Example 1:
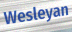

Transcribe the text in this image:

Wesleyan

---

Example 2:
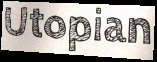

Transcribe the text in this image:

Utopian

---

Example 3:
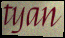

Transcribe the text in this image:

tyan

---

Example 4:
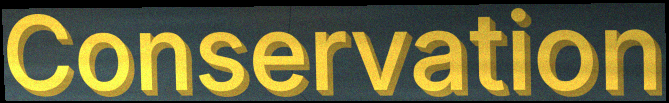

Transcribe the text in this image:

Conservation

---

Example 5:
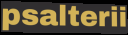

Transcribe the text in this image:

psalterii